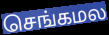
செங்கமல